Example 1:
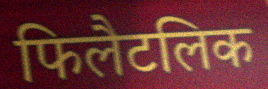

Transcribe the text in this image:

फिलैटलिक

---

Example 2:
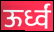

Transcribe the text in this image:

ऊर्ध्व॑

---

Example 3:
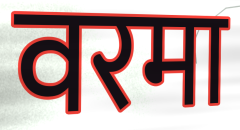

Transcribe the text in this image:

वरमा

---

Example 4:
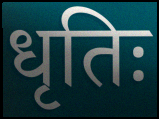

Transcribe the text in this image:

धृतिः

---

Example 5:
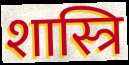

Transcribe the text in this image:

शास्त्रि